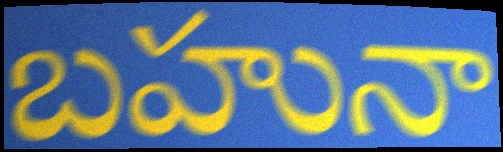
బహునా